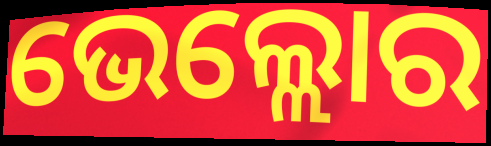
ଭେଲ୍ଲୋର